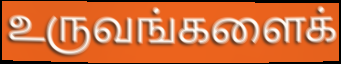
உருவங்களைக்